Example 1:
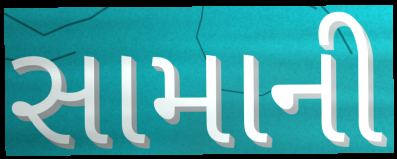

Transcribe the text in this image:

સામાની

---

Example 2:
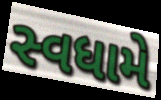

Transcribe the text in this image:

સ્વધામે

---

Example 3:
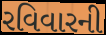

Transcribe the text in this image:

રવિવારની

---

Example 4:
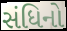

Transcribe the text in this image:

સંધિનો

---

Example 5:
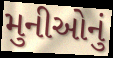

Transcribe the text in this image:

મુનીઓનું